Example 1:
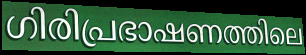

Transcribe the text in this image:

ഗിരിപ്രഭാഷണത്തിലെ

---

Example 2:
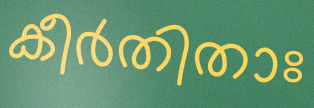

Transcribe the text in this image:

കീർതിതാഃ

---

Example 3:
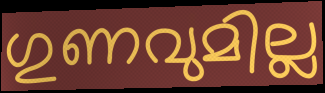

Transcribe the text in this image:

ഗുണവുമില്ല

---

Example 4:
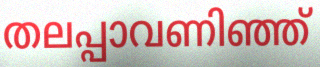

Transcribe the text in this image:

തലപ്പാവണിഞ്ഞ്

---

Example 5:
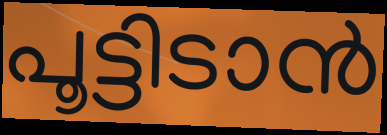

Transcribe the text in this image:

പൂട്ടിടാൻ